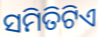
ସମିତିଟିଏ